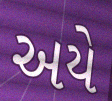
અયે